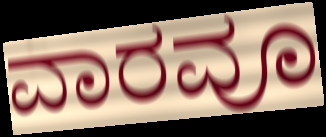
ವಾರವೂ